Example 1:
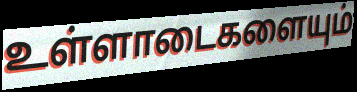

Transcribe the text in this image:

உள்ளாடைகளையும்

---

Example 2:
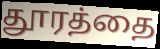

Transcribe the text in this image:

தூரத்தை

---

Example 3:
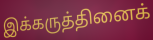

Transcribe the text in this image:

இக்கருத்தினைக்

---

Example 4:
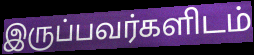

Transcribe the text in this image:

இருப்பவர்களிடம்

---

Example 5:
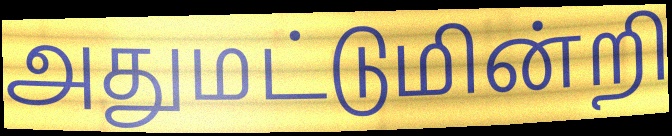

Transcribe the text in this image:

அதுமட்டுமின்றி